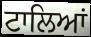
ਟਾਲਿਆਂ